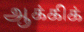
ஆக்கிக்